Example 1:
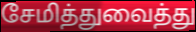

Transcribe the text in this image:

சேமித்துவைத்து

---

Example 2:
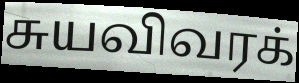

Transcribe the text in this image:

சுயவிவரக்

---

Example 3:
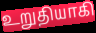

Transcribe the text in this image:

உறுதியாகி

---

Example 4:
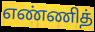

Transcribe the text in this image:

எண்ணித்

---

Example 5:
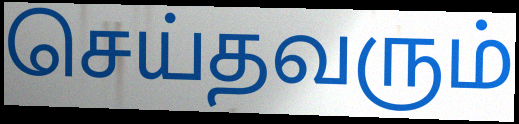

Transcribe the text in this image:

செய்தவரும்